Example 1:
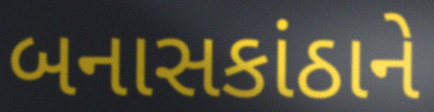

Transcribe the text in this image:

બનાસકાંઠાને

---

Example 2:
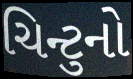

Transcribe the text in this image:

ચિન્ટુનો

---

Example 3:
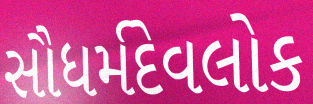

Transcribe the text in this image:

સૌધર્મદેવલોક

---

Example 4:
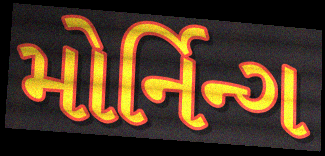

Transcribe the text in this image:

મોર્નિન્ગ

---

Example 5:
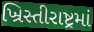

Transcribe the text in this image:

ખ્રિસ્તીરાષ્ટ્રમાં